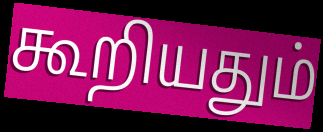
கூறியதும்